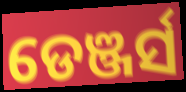
ଡେଞ୍ଜର୍ସ